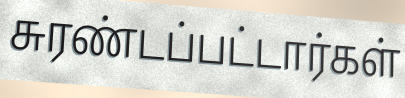
சுரண்டப்பட்டார்கள்